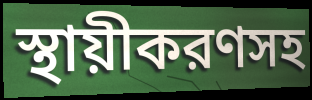
স্থায়ীকরণসহ